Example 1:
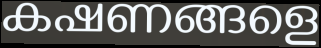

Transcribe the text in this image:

കഷണങ്ങളെ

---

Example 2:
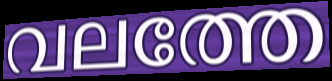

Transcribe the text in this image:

വലത്തേ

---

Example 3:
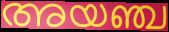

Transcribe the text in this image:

അയഞ്ച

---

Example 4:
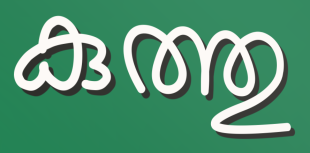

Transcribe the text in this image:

കുത്തു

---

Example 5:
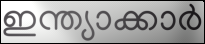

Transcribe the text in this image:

ഇന്ത്യാക്കാർ